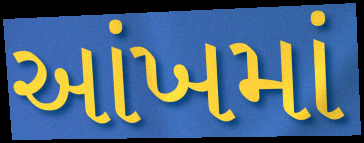
આંખમાં